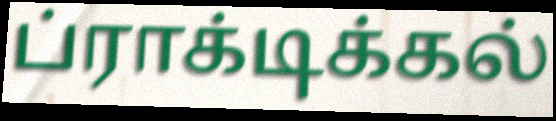
ப்ராக்டிக்கல்